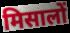
मिसालों